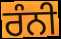
ਰੰਨੀ